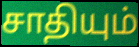
சாதியும்